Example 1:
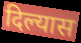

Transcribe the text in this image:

दिल्यास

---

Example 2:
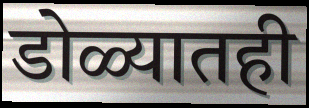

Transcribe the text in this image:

डोळ्यातही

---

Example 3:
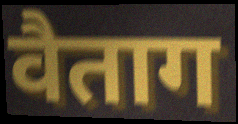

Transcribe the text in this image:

वैताग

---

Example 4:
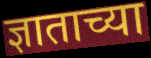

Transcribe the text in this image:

ज्ञाताच्या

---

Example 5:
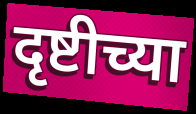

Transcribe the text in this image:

दृष्टीच्या